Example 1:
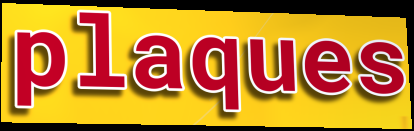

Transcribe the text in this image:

plaques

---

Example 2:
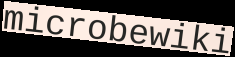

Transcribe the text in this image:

microbewiki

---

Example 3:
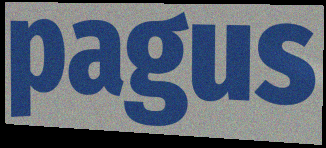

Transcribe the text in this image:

pagus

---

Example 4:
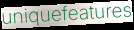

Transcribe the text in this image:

uniquefeatures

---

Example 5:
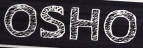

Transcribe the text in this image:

OSHO